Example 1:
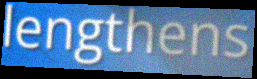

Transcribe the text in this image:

lengthens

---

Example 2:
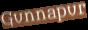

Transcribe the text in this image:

Gunnapur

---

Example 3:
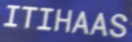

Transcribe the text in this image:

ITIHAAS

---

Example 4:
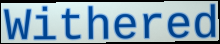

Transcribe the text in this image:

Withered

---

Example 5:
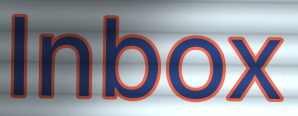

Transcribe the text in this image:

Inbox